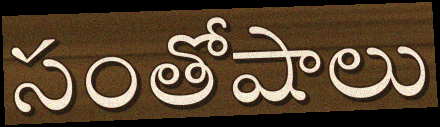
సంతోషాలు